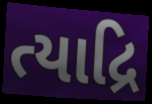
ત્યાદ્રિ